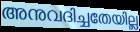
അനുവദിച്ചതേയില്ല